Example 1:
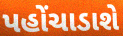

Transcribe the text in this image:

પહોંચાડાશે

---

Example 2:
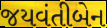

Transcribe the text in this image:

જયવંતીબેન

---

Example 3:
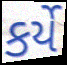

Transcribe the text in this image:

કર્યે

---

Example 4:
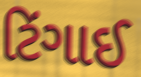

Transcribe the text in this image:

ટિંગાઈ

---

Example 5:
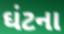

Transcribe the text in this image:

ઘંટના